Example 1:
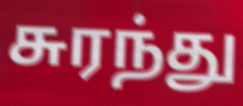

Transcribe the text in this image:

சுரந்து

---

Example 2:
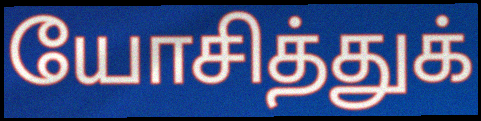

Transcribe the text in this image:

யோசித்துக்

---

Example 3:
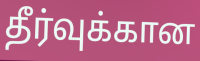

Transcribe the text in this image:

தீர்வுக்கான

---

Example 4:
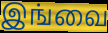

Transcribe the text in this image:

இங்வை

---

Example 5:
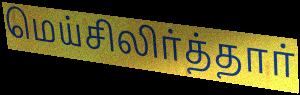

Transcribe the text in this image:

மெய்சிலிர்த்தார்